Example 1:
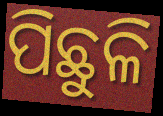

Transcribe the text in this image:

ପିଛୁଳି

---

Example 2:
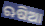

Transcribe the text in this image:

ଋଷିଆ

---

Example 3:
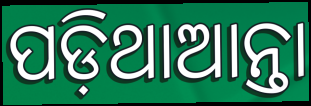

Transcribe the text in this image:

ପଡ଼ିଥାଆନ୍ତା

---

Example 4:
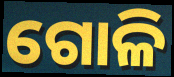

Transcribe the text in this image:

ଗୋଳି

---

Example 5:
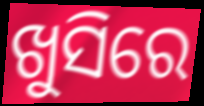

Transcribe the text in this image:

ଖୁସିରେ